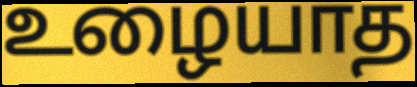
உழையாத